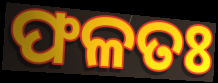
ଫଳତଃ